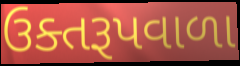
ઉક્તરૂપવાળા